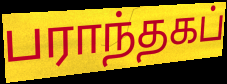
பராந்தகப்